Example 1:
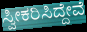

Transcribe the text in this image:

ಸ್ವೀಕರಿಸಿದ್ದೇವೆ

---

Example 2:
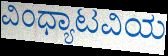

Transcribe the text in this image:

ವಿಂಧ್ಯಾಟವಿಯ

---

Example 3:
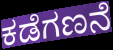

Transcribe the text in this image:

ಕಡೆಗಣನೆ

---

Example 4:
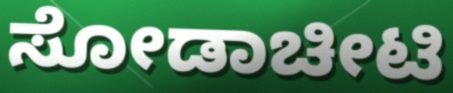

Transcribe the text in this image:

ಸೋಡಾಚೀಟಿ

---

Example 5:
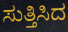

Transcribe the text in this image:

ಸುತ್ತಿಸಿದ